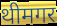
थीमगर